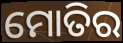
ମୋତିର